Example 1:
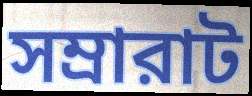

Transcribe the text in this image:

সম্রারাট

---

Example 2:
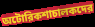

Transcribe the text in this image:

অটোরিকশাচালকদের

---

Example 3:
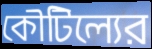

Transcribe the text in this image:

কৌটিল্যের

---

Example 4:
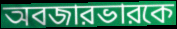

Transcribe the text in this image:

অবজারভারকে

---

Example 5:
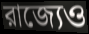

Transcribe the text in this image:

রাজ্যেও